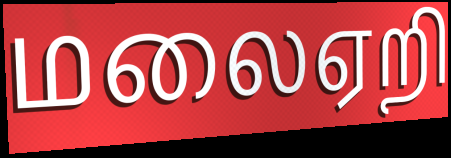
மலைஏறி